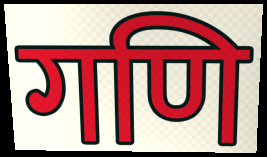
गणि